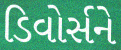
ડિવોર્સને